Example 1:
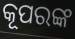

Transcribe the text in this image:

କୂପରଙ୍କ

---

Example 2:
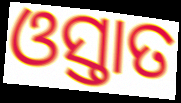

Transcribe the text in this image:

ଓସ୍ତାତ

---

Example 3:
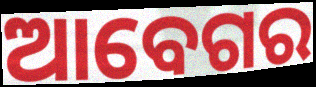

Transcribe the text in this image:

ଆବେଗର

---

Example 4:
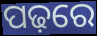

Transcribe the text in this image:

ପଢ଼ରେ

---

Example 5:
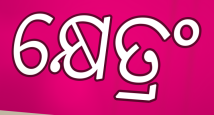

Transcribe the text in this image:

କ୍ଷେତ୍ରଂ